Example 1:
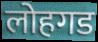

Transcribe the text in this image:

लोहगड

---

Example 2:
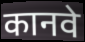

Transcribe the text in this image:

कानवे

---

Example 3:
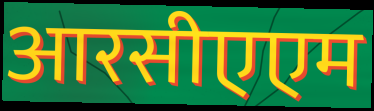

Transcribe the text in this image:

आरसीएएम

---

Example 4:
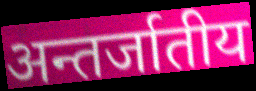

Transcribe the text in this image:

अन्तर्जातीय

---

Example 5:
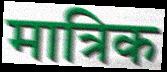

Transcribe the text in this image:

मात्रिक